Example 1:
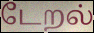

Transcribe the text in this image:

டேறல்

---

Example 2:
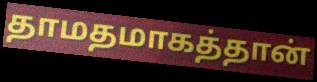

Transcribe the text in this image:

தாமதமாகத்தான்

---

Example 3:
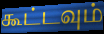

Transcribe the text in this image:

கூட்டவும்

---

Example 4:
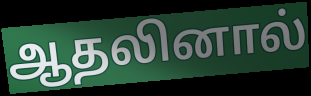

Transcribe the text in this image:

ஆதலினால்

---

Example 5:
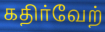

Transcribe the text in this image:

கதிர்வேற்